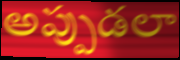
అప్పుడలా